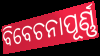
ବିବେଚନାପୂର୍ଣ୍ଣ